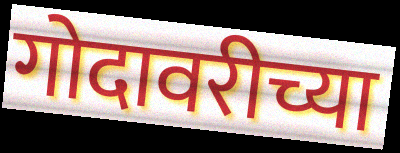
गोदावरीच्या